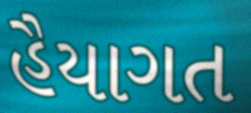
હૈયાગત